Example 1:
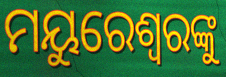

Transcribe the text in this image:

ମୟୁରେଶ୍ବରଙ୍କୁ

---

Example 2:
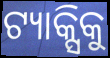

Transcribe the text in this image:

ଟ୍ୟାକ୍ସିକୁ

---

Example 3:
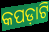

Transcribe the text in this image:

କପଡ଼ାଟି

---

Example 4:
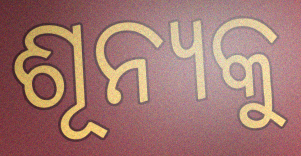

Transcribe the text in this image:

ଶୂନ୍ୟକୁ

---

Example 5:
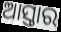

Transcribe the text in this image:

ଆସ୍ତାର